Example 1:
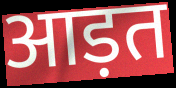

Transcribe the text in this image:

आड़त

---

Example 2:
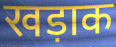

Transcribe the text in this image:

खड़ाक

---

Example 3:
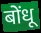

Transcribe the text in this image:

बोंधू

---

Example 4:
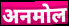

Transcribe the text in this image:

अनमोल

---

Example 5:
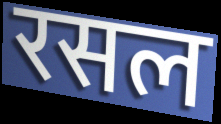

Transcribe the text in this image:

रसल